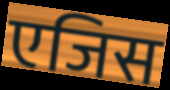
एजिस